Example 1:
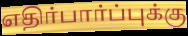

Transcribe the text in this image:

எதிர்பார்ப்புக்கு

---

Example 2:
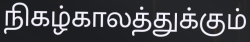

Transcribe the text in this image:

நிகழ்காலத்துக்கும்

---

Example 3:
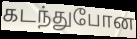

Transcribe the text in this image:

கடந்துபோன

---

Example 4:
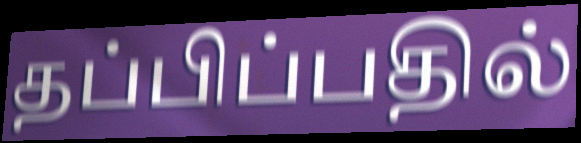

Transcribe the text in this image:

தப்பிப்பதில்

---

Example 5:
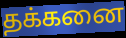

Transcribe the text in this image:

தக்கனை